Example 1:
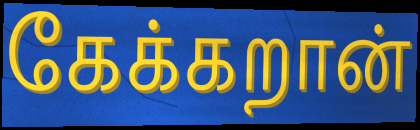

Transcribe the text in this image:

கேக்கறான்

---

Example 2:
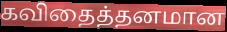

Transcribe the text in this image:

கவிதைத்தனமான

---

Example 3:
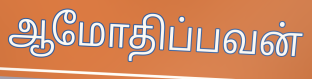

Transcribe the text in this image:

ஆமோதிப்பவன்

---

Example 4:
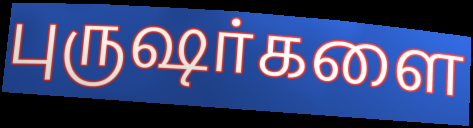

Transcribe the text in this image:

புருஷர்களை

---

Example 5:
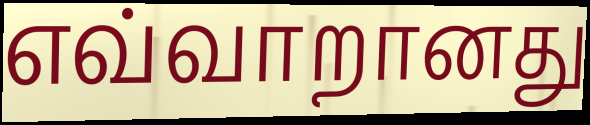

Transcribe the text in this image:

எவ்வாறானது